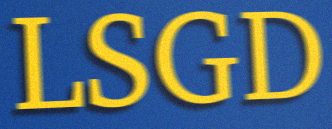
LSGD